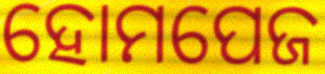
ହୋମପେଜ